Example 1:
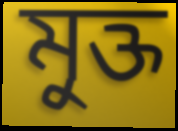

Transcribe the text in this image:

মুক্ত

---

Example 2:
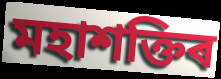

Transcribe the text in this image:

মহাশক্তিৰ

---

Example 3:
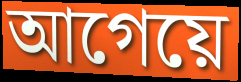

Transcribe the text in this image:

আগেয়ে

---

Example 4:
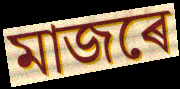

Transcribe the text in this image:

মাজৰে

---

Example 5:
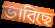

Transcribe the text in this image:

ভাবিছে